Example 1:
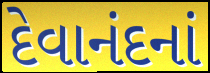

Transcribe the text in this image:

દેવાનંદનાં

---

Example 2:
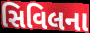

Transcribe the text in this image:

સિવિલના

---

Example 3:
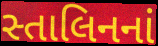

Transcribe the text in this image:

સ્તાલિનનાં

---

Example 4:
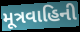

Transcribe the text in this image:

મૂત્રવાહિની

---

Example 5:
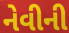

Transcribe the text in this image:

નેવીની